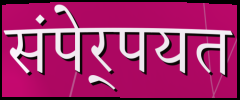
संपेर्पयत